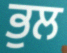
ਭੁਲ